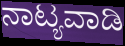
ನಾಟ್ಯವಾಡಿ